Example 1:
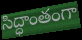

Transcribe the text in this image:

సిద్ధాంతంగా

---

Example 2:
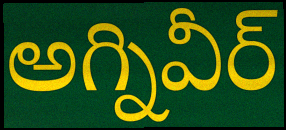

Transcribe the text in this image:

అగ్నివీర్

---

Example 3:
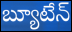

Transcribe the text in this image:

బ్యూటేన్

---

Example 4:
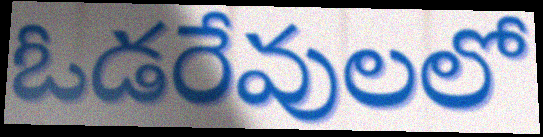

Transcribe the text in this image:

ఓడరేవులలో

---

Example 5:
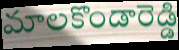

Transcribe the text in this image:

మాలకొండారెడ్డి